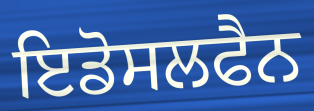
ਇਡੋਸਲਫੈਨ